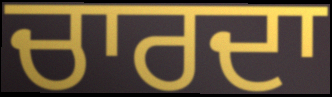
ਚਾਰਦਾ